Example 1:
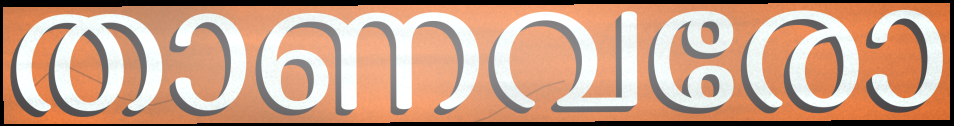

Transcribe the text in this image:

താണവരോ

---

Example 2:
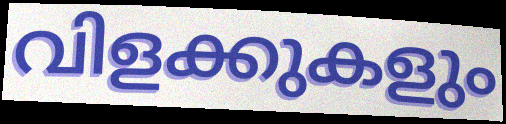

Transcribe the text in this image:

വിളക്കുകളും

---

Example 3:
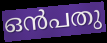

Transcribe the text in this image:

ഒൻപതു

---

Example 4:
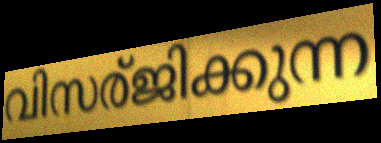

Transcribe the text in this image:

വിസര്ജിക്കുന്ന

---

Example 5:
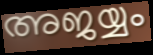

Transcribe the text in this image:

അജയ്യം